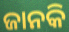
ଜାନକି